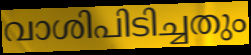
വാശിപിടിച്ചതും